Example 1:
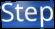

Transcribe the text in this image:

Step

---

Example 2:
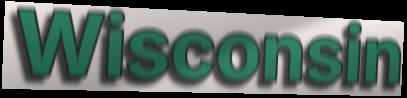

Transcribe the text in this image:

Wisconsin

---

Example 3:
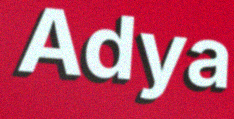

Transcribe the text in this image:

Adya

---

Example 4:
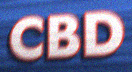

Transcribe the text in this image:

CBD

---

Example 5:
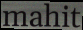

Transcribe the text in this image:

mahit